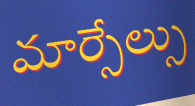
మార్సేల్సు